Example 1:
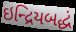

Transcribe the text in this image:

ઇન્દ્રિયબદ્ધં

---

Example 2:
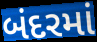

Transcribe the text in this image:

બંદરમાં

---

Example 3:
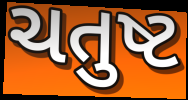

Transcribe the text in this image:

ચતુષ્ટ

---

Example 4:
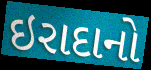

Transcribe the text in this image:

ઇરાદાનો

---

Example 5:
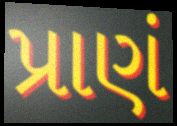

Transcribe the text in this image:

પ્રાણં